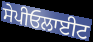
ਸੇਪੀਓਲਾਈਟ